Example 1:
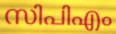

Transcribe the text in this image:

സിപിഎം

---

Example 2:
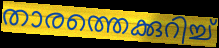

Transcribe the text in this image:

താരത്തെക്കുറിച്ച്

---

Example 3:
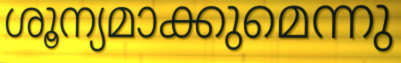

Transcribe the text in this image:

ശൂന്യമാക്കുമെന്നു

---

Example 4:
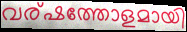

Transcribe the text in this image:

വര്ഷത്തോളമായി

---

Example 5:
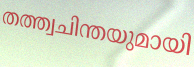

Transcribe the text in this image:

തത്ത്വചിന്തയുമായി